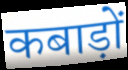
कबाड़ों